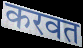
करवत